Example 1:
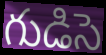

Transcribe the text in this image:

గుడిసె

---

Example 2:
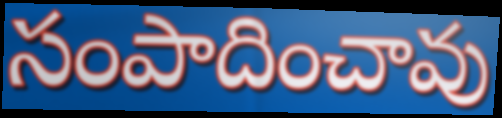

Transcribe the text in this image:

సంపాదించావు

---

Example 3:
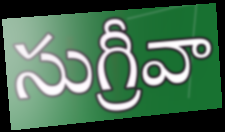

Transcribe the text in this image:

సుగ్రీవా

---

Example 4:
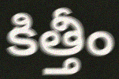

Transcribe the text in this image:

కిత్తీం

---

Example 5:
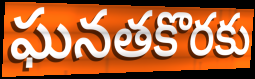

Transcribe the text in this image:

ఘనతకొరకు